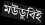
মউডুবিই